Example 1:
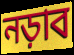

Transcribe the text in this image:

নড়াব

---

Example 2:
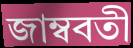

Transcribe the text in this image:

জাম্ববতী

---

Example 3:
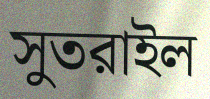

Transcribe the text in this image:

সুতরাইল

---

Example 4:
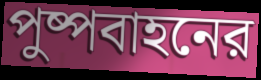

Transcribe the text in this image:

পুষ্পবাহনের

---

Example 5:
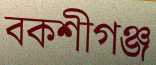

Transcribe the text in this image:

বকশীগঞ্জ